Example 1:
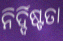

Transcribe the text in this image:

ନିର୍ଦ୍ଦିଷ୍ଟତା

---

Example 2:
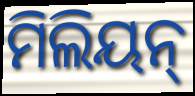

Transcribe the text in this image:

ମିଲିୟନ୍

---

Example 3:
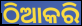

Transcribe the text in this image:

ଠିଆକରି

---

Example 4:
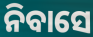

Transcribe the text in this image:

ନିବାସେ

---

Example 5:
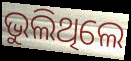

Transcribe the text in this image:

ଭୁଲିଥିଲେ